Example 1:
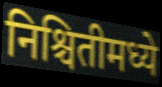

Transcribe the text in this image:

निश्चितीमध्ये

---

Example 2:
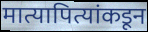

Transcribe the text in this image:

मात्यापित्यांकडून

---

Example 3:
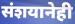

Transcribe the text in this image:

संशयानेही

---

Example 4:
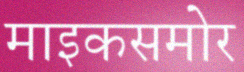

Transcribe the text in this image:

माइकसमोर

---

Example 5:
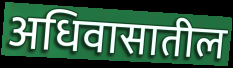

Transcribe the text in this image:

अधिवासातील